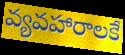
వ్యవహారాలకే